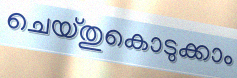
ചെയ്തുകൊടുക്കാം